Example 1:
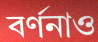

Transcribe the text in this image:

বর্ণনাও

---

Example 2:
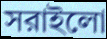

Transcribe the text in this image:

সরাইলো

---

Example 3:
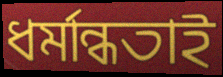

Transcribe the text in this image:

ধর্মান্ধতাই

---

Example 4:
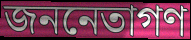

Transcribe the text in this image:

জননেতাগণ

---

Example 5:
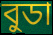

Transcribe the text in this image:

বুডা